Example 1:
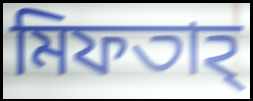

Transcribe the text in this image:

মিফতাহ্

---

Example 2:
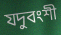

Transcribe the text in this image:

যদুবংশী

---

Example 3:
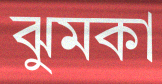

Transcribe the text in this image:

ঝুমকা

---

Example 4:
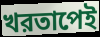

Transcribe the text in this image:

খরতাপেই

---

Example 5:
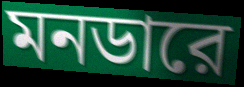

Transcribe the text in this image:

মনডারে